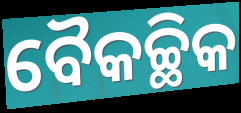
ବୈକଚ୍ଛିକ